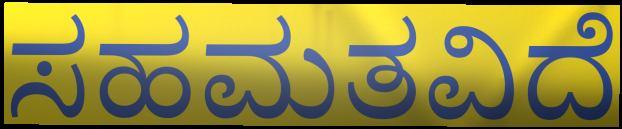
ಸಹಮತವಿದೆ